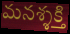
మనశ్శక్తి